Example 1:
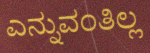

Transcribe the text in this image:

ಎನ್ನುವಂತಿಲ್ಲ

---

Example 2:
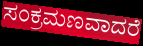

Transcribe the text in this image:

ಸಂಕ್ರಮಣವಾದರೆ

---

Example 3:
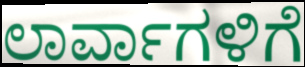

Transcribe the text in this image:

ಲಾರ್ವಾಗಳಿಗೆ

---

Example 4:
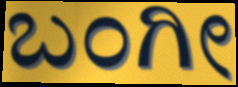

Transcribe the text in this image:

ಬಂಗೀ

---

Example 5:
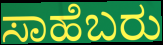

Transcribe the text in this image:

ಸಾಹೆಬರು